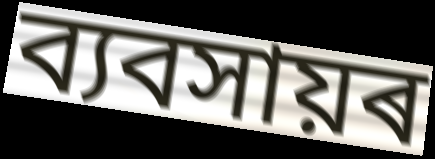
ব্যবসায়ৰ